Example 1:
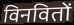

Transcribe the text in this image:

विनवितों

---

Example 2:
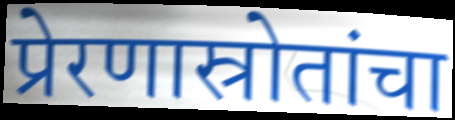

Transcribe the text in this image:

प्रेरणास्रोतांचा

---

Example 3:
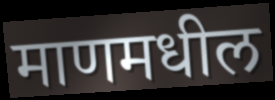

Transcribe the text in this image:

माणमधील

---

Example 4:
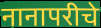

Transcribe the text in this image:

नानापरीचे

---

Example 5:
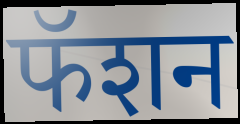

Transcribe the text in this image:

फॅशन